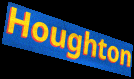
Houghton